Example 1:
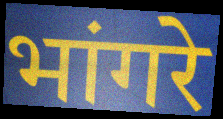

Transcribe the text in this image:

भांगरे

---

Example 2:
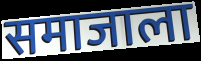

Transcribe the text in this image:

समाजाला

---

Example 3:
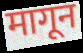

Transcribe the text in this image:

मागून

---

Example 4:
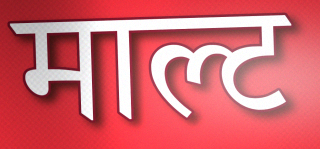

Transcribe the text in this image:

माल्ट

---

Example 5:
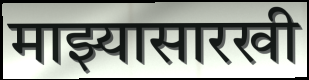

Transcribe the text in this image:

माझ्यासारखी